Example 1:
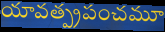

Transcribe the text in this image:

యావత్ప్రపంచమూ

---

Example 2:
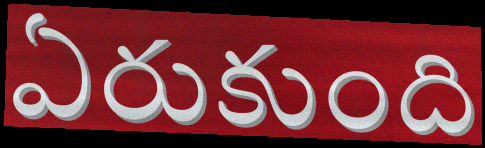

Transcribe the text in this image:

ఏరుకుంది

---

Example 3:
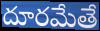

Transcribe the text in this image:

దూరమేతే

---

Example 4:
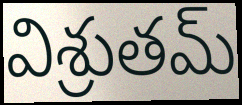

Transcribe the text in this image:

విశ్రుతమ్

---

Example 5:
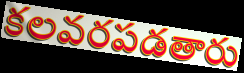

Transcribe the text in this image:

కలవరపడతారు